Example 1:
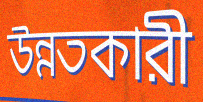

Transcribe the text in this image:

উন্নতকারী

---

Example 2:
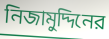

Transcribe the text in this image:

নিজামুদ্দিনের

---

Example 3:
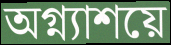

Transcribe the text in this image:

অগ্ন্যাশয়ে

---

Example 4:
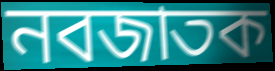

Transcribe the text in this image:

নবজাতক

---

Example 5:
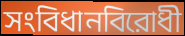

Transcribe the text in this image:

সংবিধানবিরোধী